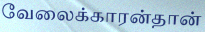
வேலைக்காரன்தான்